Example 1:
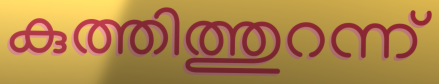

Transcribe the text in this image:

കുത്തിത്തുറന്ന്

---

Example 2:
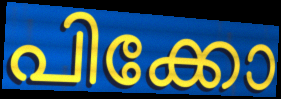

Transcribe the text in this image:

പിക്കോ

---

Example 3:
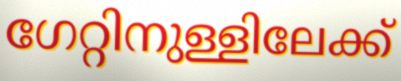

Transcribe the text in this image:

ഗേറ്റിനുള്ളിലേക്ക്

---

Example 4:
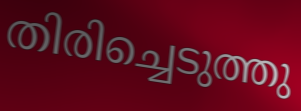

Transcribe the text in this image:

തിരിച്ചെടുത്തു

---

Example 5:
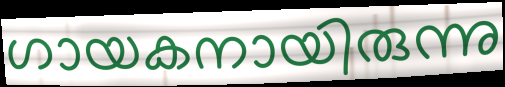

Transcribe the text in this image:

ഗായകനായിരുന്നു